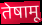
तेषामू